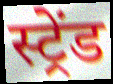
स्ट्रेंड